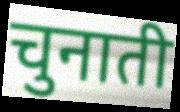
चुनाती